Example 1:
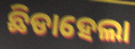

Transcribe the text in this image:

ଛିଡାହେଲା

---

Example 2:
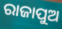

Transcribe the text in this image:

ରାଜାପୁଅ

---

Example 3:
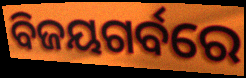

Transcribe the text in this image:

ବିଜୟଗର୍ବରେ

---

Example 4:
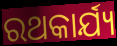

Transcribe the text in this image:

ରଥକାର୍ଯ୍ୟ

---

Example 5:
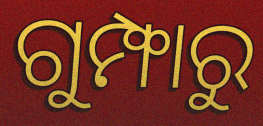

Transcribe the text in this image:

ଗୁମ୍ଫାରୁ